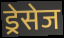
ड्रेसेज